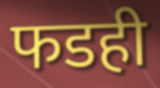
फडही